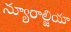
న్యూరాల్జియా